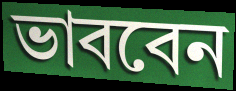
ভাববেন